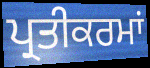
ਪ੍ਰਤੀਕਰਮਾਂ